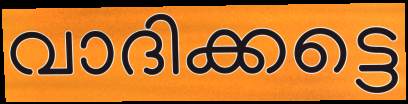
വാദിക്കട്ടെ